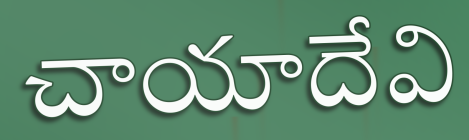
చాయాదేవి